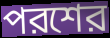
পরশের